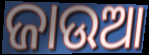
ଜାଉଆ